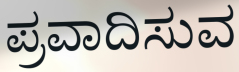
ಪ್ರವಾದಿಸುವ